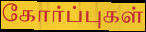
கோர்ப்புகள்